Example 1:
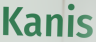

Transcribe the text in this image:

Kanis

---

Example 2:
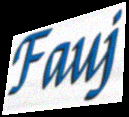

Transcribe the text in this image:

Fauj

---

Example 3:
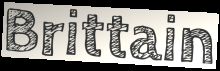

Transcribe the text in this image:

Brittain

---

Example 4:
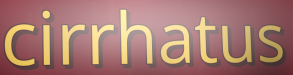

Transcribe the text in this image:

cirrhatus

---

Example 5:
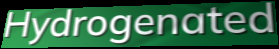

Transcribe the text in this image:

Hydrogenated